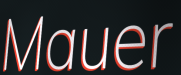
Mauer